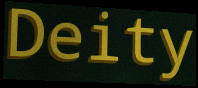
Deity